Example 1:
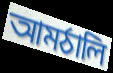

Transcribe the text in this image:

আমঠালি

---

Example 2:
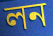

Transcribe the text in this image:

লন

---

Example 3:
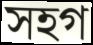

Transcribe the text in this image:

সহগ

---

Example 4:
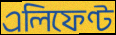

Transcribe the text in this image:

এলিফেণ্ট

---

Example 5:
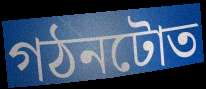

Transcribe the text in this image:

গঠনটোত